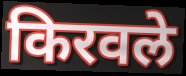
किरवले